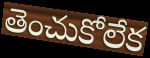
తెంచుకోలేక